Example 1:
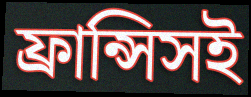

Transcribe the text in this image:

ফ্রান্সিসই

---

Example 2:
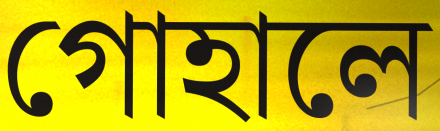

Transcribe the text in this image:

গোহালে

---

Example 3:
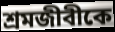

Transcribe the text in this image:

শ্রমজীবীকে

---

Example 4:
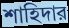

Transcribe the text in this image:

শাহিদার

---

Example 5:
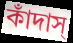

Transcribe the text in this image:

কাঁদাস্